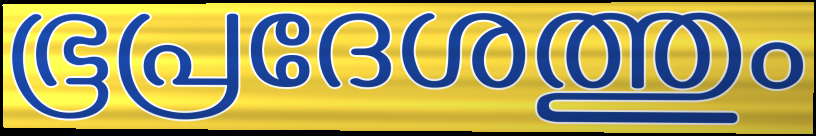
ഭൂപ്രദേശത്തും